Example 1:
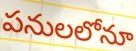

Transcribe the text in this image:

పనులలోనూ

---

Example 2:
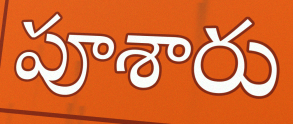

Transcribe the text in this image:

పూశారు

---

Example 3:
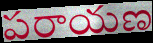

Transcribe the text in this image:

పరాయణ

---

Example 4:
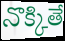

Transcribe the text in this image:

నొక్కితే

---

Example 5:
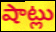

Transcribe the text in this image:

షాట్లు